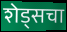
शेड्सचा